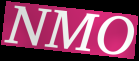
NMO